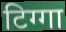
टिग्गा